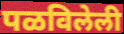
पळविलेली